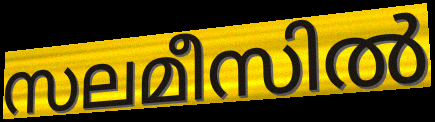
സലമീസിൽ